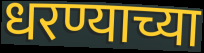
धरण्याच्या